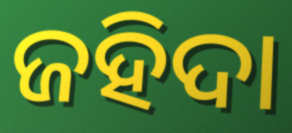
ଜହିଦା